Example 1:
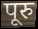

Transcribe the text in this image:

पूरु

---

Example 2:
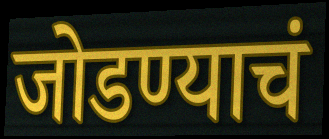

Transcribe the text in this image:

जोडण्याचं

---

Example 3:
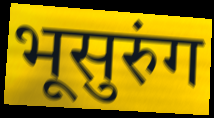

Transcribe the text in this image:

भूसुरुंग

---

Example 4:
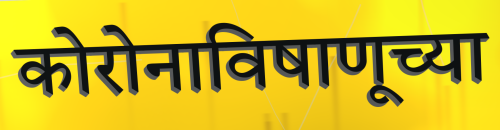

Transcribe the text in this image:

कोरोनाविषाणूच्या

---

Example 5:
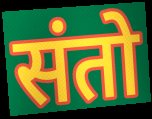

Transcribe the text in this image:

संतो